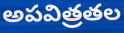
అపవిత్రతల